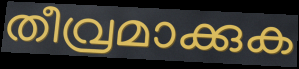
തീവ്രമാക്കുക